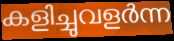
കളിച്ചുവളർന്ന